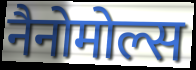
नैनोमोल्स